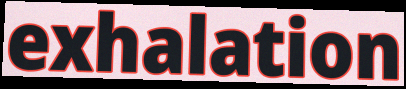
exhalation